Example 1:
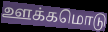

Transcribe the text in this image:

ஊக்கமொடு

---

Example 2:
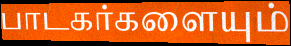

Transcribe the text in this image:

பாடகர்களையும்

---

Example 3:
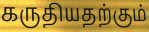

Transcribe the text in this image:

கருதியதற்கும்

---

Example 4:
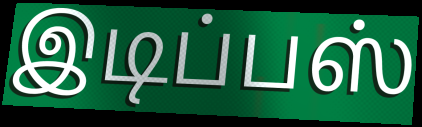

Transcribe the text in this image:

இடிப்பஸ்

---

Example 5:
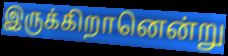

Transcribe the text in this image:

இருக்கிறானென்று